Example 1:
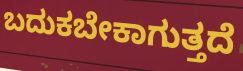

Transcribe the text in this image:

ಬದುಕಬೇಕಾಗುತ್ತದೆ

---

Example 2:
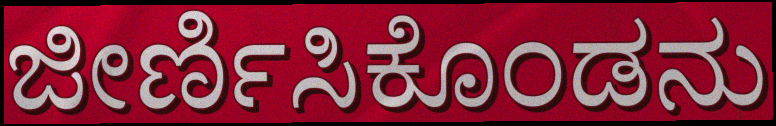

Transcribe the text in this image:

ಜೀರ್ಣಿಸಿಕೊಂಡನು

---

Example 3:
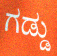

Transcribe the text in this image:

ಗಡ್ಡು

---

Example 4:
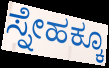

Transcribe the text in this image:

ಸ್ನೇಹಕ್ಕೂ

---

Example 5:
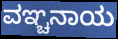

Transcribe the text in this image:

ವಞ್ಚನಾಯ